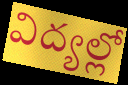
విద్యల్లో